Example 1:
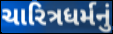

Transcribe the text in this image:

ચારિત્રધર્મનું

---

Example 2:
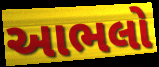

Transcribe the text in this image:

આભલો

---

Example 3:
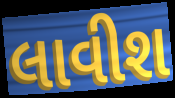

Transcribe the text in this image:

લાવીશ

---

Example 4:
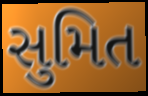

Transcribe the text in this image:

સુમિત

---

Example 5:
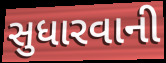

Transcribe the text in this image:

સુધારવાની